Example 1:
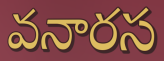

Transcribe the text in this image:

వనారస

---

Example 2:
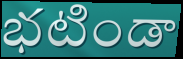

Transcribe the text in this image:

భటిండా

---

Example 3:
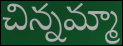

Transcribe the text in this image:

చిన్నమ్మా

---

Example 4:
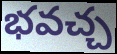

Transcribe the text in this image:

భవచ్చ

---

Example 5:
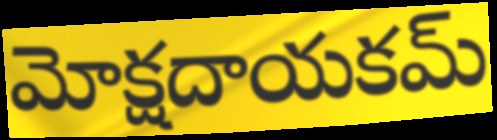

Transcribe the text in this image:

మోక్షదాయకమ్